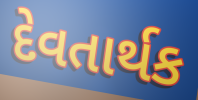
દેવતાર્થક